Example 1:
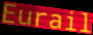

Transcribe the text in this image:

Eurail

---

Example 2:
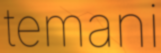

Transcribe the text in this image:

temani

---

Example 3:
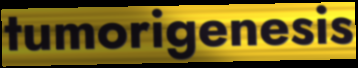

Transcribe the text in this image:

tumorigenesis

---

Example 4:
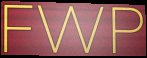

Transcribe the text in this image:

FWP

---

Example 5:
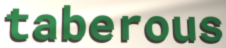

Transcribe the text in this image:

taberous